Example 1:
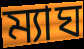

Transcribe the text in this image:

ম্যাঘ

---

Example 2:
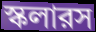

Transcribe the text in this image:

স্কলারস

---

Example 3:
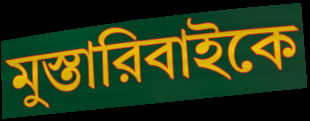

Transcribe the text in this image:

মুস্তারিবাইকে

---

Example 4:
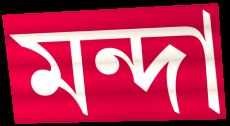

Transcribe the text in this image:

মন্দা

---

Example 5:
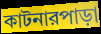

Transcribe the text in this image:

কাটনারপাড়া